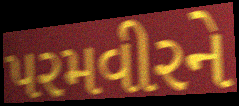
પરમવીરને